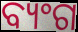
ବ୍ୟଂଗ